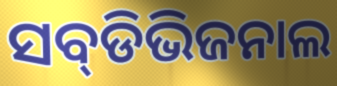
ସବ୍‌ଡିଭିଜନାଲ